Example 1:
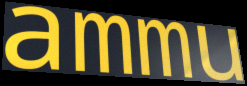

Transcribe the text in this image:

ammu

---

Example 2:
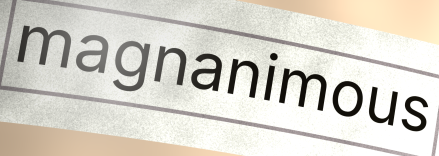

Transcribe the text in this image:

magnanimous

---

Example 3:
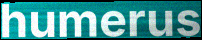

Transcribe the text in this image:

humerus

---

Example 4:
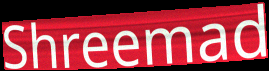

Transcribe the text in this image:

Shreemad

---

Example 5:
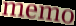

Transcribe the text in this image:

memo